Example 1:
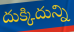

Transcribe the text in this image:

దుక్కిదున్ని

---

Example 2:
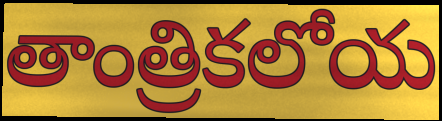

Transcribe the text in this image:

తాంత్రికలోయ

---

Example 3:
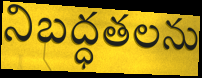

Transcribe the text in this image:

నిబద్ధతలను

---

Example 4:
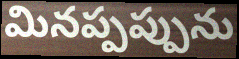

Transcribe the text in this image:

మినప్పప్పును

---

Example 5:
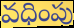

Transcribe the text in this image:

వధింపు